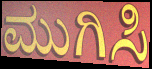
ಮುಗಿಸಿ